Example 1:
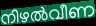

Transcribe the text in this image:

നിഴൽവീണ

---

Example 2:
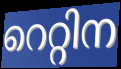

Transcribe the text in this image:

റെറ്റിന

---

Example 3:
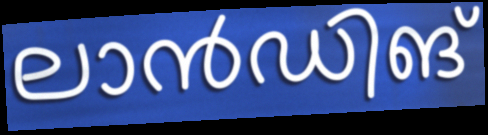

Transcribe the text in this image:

ലാൻഡിങ്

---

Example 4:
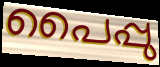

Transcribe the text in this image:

പൈപ്പു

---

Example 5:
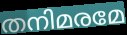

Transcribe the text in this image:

തനിമരമേ